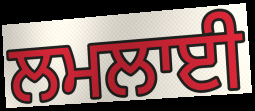
ਲਮਲਾਈ